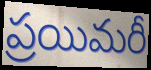
ప్రయిమరీ